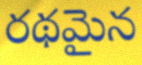
రథమైన